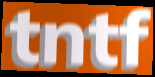
tntf